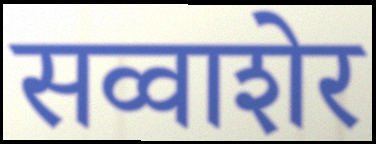
सव्वाशेर